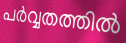
പർവ്വതത്തിൽ